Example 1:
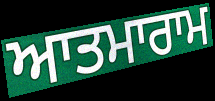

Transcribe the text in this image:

ਆਤਮਾਰਾਮ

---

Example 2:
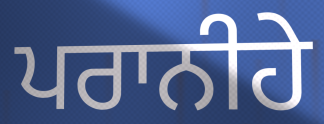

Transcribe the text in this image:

ਪਰਾਨੀਹੇ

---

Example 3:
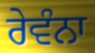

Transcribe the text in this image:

ਰੇਵੰਨਾ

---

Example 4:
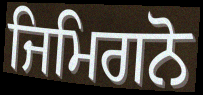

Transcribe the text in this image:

ਜਿਮਿਗਨੋ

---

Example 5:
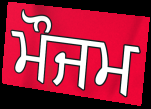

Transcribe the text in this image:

ਮੌਜਮ